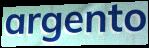
argento